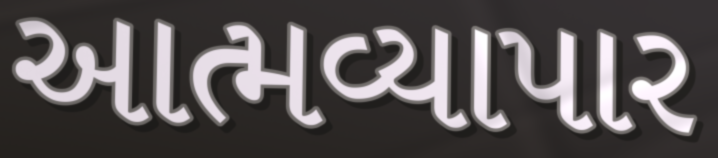
આત્મવ્યાપાર